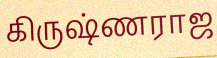
கிருஷ்ணராஜ